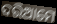
ଦରିଆମେ